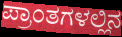
ಪ್ರಾಂತಗಳಲ್ಲಿನ